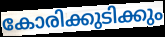
കോരിക്കുടിക്കും